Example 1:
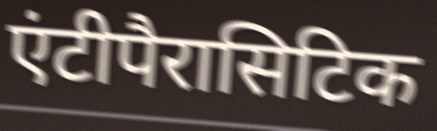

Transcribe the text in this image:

एंटीपैरासिटिक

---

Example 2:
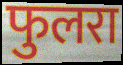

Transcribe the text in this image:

फुलरा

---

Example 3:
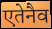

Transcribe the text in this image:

एतेनैव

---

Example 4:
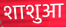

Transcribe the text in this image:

शाशुआ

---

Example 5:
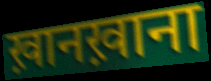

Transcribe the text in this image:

ख़ानख़ाना